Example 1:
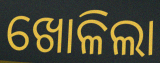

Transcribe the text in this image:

ଖୋଳିଲା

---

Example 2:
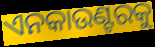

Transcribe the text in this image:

ଏନକାଉଣ୍ଟରକୁ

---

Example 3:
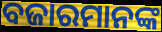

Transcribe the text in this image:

ବଜାରମାନଙ୍କ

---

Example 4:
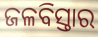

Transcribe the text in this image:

ଜଳବିସ୍ତାର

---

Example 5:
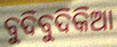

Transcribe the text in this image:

ବୁଦିବୁଦିକିଆ